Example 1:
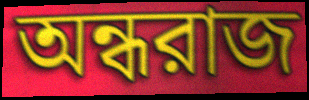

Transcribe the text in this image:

অন্ধরাজ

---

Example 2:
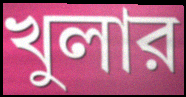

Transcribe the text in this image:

খুলার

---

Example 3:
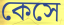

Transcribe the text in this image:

কেসে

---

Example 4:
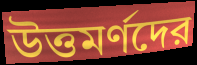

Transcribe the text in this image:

উত্তমর্ণদের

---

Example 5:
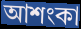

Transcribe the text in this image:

আশংকা